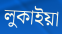
লুকাইয়া